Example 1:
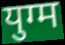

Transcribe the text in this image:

युग्म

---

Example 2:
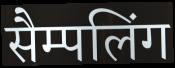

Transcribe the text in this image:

सैम्पलिंग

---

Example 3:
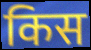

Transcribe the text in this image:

किस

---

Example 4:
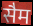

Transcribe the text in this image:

सैम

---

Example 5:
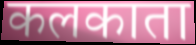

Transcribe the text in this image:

कलकाता